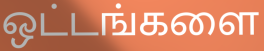
ஒட்டங்களை